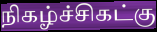
நிகழ்ச்சிகட்கு